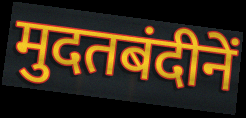
मुदतबंदीनें